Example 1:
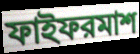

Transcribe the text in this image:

ফাইফরমাশ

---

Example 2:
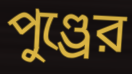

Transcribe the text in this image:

পুণ্ড্রের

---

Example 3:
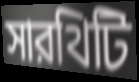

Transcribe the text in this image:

সারথিটি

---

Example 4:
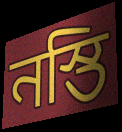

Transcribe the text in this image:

নস্তি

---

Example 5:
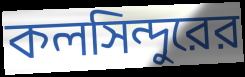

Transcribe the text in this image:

কলসিন্দুরের